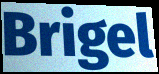
Brigel